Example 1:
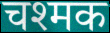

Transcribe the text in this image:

चश्मक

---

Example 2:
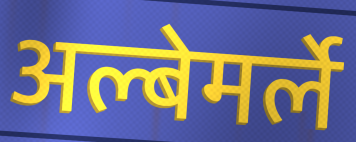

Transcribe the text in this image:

अल्बेमर्ले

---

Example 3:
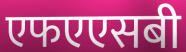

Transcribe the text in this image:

एफएएसबी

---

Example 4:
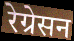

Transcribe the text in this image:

रेग्रेसन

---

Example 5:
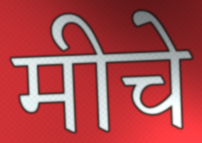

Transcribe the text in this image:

मीचे